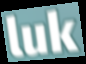
luk